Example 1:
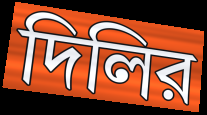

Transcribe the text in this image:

দিলির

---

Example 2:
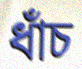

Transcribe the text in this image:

ধাঁচ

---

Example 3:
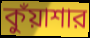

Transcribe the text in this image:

কুঁয়াশার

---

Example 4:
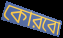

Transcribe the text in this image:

কোরবো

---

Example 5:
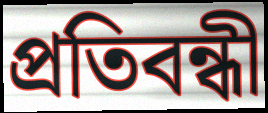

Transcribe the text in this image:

প্রতিবন্ধী